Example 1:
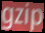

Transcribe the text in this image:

gzip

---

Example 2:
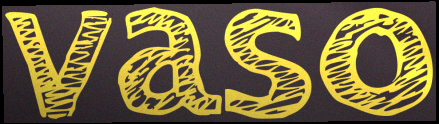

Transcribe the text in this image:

vaso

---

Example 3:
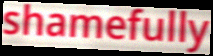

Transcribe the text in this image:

shamefully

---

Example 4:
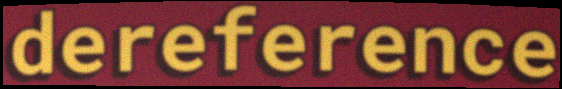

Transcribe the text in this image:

dereference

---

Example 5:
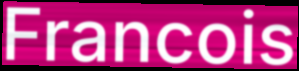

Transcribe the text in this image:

Francois